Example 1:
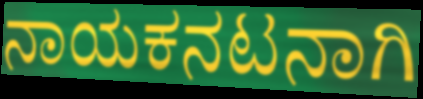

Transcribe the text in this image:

ನಾಯಕನಟನಾಗಿ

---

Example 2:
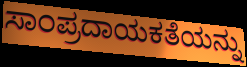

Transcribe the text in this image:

ಸಾಂಪ್ರದಾಯಕತೆಯನ್ನು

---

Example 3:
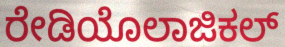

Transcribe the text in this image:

ರೇಡಿಯೊಲಾಜಿಕಲ್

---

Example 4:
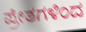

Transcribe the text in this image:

ಪ್ರೇತಗಳಿಂದ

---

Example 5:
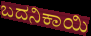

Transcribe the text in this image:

ಬದನಿಕಾಯಿ